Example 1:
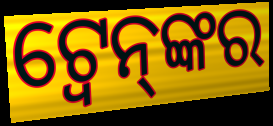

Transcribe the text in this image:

ଟ୍ୱେନ୍‌ଙ୍କର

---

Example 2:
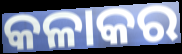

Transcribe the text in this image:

କଳାକର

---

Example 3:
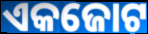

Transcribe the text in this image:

ଏକଜୋଟ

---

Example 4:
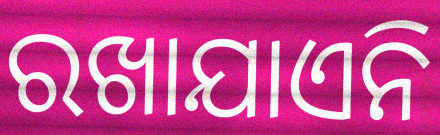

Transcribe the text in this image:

ରଖାଯାଏନି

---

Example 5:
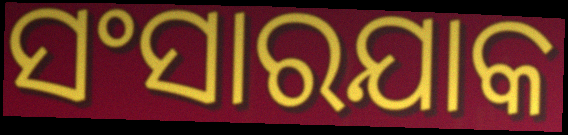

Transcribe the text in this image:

ସଂସାରଯାକ